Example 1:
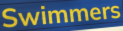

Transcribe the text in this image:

Swimmers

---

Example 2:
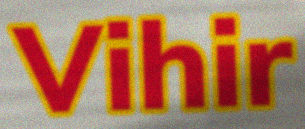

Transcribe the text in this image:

Vihir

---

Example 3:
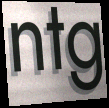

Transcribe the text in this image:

ntg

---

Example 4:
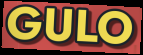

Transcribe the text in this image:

GULO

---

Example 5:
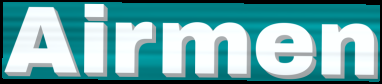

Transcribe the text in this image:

Airmen